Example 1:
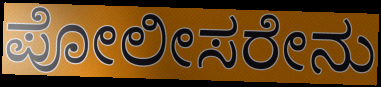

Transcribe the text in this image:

ಪೋಲೀಸರೇನು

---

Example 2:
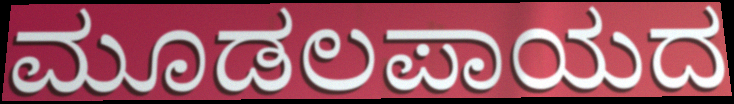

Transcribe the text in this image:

ಮೂಡಲಪಾಯದ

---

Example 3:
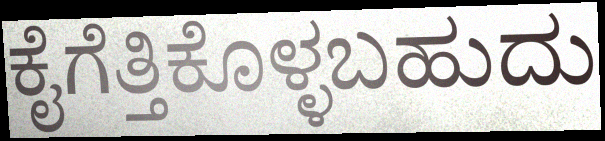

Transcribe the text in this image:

ಕೈಗೆತ್ತಿಕೊಳ್ಳಬಹುದು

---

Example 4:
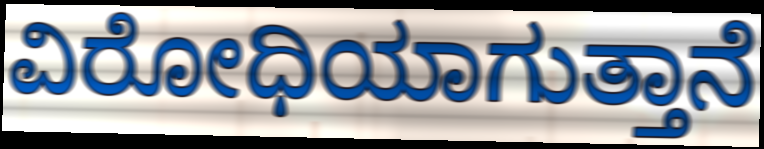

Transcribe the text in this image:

ವಿರೋಧಿಯಾಗುತ್ತಾನೆ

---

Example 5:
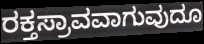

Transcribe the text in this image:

ರಕ್ತಸ್ರಾವವಾಗುವುದೂ